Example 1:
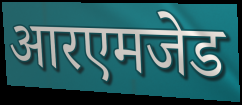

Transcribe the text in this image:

आरएमजेड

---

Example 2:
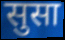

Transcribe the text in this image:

सुसा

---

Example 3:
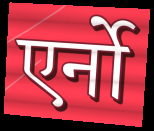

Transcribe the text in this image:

एर्नो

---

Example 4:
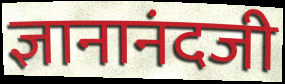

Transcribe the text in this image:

ज्ञानानंदजी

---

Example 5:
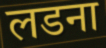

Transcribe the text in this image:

लडना